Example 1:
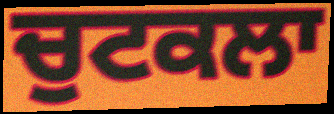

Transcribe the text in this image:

ਚੁਟਕਲਾ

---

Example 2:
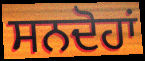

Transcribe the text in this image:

ਸਨਦੋਹਾਂ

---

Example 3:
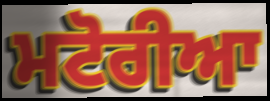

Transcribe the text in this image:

ਮਟੋਰੀਆ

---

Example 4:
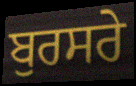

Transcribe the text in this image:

ਬੁਰਸਰੇ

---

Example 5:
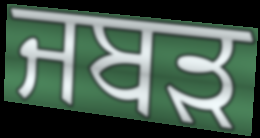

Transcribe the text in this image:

ਜਬੜ